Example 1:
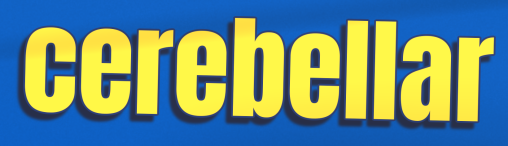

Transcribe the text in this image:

cerebellar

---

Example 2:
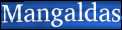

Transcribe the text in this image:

Mangaldas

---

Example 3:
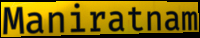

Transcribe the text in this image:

Maniratnam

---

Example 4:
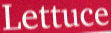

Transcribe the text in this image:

Lettuce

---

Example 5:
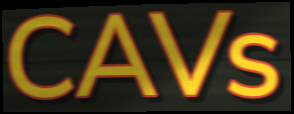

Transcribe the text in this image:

CAVs